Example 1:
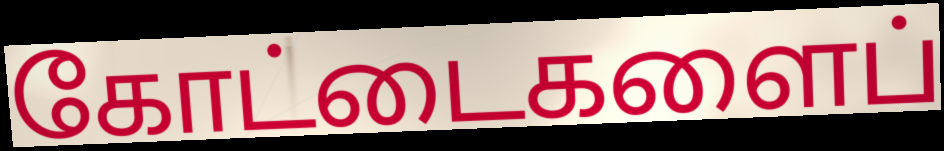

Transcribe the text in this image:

கோட்டைகளைப்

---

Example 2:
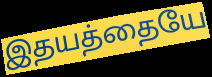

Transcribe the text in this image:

இதயத்தையே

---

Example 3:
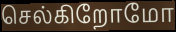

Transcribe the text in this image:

செல்கிறோமோ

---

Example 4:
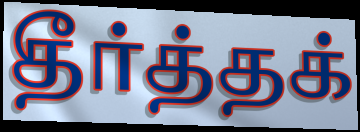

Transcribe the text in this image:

தீர்த்தக்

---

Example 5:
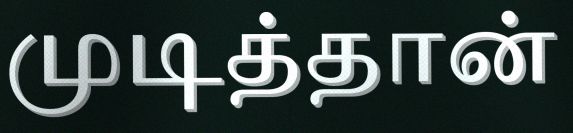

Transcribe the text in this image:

முடித்தான்